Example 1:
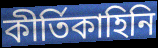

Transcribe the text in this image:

কীর্তিকাহিনি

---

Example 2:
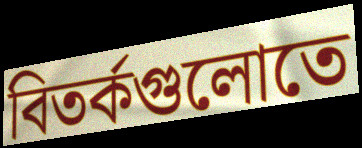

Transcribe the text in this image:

বিতর্কগুলোতে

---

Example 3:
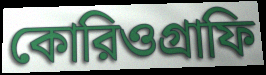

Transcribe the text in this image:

কোরিওগ্রাফি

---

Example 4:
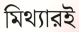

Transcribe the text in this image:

মিথ্যারই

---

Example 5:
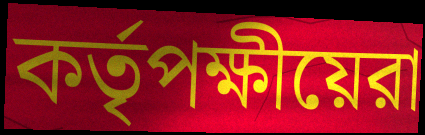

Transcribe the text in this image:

কর্তৃপক্ষীয়েরা